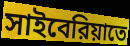
সাইবেরিয়াতে